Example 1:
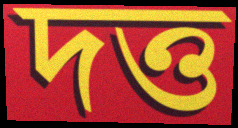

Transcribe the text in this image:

দত্ত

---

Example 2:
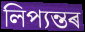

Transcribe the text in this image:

লিপ্যন্তৰ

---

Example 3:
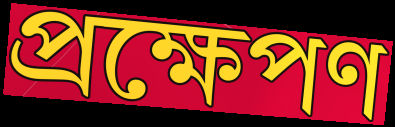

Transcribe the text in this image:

প্ৰক্ষেপণ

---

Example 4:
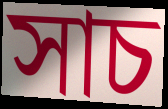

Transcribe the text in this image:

সাচ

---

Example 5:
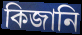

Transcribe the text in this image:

কিজানি